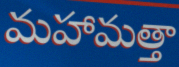
మహామత్తా